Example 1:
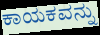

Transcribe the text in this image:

ಕಾಯಕವನ್ನು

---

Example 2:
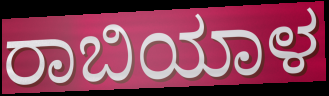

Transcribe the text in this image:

ರಾಬಿಯಾಳ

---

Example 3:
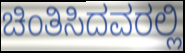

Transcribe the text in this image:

ಚಿಂತಿಸಿದವರಲ್ಲಿ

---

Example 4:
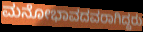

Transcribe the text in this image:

ಮನೋಭಾವದವರಾಗಿದ್ದರು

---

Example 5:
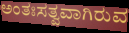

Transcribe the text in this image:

ಅಂತಃಸತ್ವವಾಗಿರುವ